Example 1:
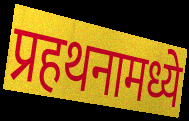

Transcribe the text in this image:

प्रहथनामध्ये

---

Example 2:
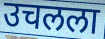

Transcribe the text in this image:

उचलला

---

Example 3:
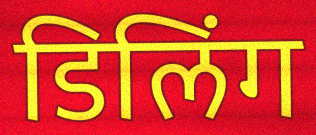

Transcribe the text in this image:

डिलिंग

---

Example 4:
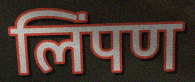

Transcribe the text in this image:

लिंपण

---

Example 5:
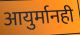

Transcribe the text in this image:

आयुर्मानही